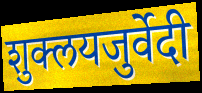
शुक्लयजुर्वेदी